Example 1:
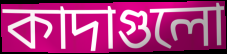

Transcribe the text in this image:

কাদাগুলো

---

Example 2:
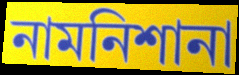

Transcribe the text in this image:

নামনিশানা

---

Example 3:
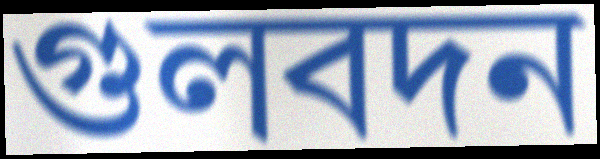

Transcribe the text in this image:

গুলবদন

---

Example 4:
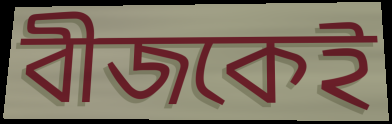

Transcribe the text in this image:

বীজকেই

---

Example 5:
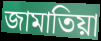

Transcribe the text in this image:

জামাতিয়া